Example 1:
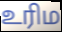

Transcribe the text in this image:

உரிம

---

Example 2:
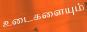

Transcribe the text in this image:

உடைகளையும்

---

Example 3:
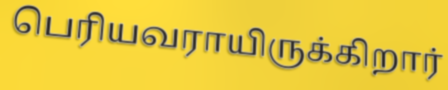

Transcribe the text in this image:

பெரியவராயிருக்கிறார்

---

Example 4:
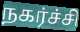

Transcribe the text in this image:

நகர்ச்சி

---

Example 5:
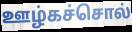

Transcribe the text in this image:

ஊழ்கச்சொல்